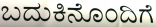
ಬದುಕಿನೊಂದಿಗೆ